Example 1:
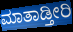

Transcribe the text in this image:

ಮಾತಾಡ್ತೀರಿ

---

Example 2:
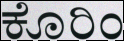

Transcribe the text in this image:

ಕೊರಿಂ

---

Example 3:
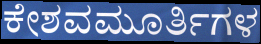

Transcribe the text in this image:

ಕೇಶವಮೂರ್ತಿಗಳ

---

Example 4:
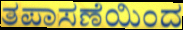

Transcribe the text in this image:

ತಪಾಸಣೆಯಿಂದ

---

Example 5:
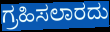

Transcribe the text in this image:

ಗ್ರಹಿಸಲಾರದು